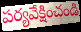
పర్యవేక్షించండి